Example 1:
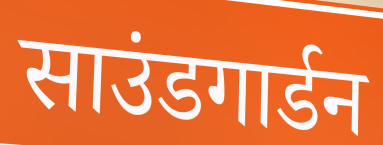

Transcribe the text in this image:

साउंडगार्डन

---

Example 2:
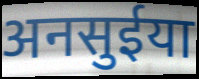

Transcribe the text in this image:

अनसुईया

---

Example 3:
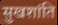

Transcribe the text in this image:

सुखशांति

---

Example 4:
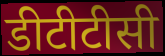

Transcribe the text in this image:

डीटीटीसी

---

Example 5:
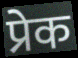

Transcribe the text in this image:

प्रेक